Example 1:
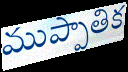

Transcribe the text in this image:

ముప్పాతిక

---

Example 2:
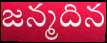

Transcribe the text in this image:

జన్మదిన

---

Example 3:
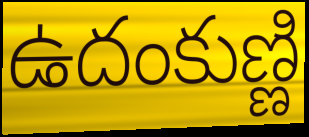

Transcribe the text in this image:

ఉదంకుణ్ణి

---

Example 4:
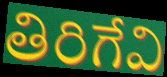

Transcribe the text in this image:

తిరిగేవి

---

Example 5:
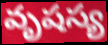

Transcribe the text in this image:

వృషస్య